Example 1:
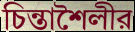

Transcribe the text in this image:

চিন্তাশৈলীর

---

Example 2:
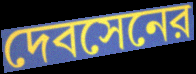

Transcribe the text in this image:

দেবসেনের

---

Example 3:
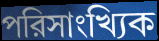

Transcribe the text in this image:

পরিসাংখ্যিক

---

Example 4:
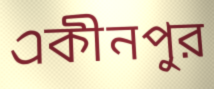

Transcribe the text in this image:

একীনপুর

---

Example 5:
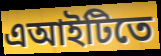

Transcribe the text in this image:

এআইটিতে